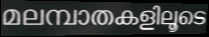
മലമ്പാതകളിലൂടെ